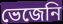
ভেজেনি